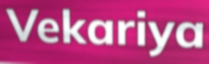
Vekariya